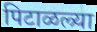
पिटाळल्या